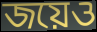
জয়েও